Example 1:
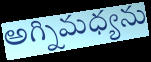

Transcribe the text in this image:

అగ్నిమధ్యను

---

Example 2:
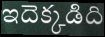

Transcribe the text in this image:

ఇదెక్కడిది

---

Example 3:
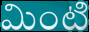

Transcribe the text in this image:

మింటి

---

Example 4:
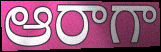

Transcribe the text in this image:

ఆరాగా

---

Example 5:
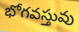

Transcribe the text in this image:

భోగవస్తువు